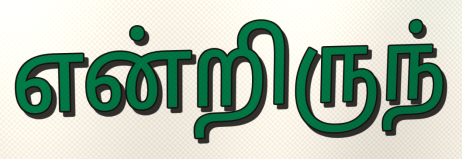
என்றிருந்